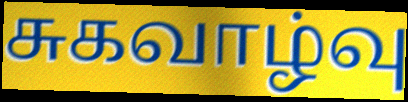
சுகவாழ்வு